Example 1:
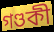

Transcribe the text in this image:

গণ্ডকী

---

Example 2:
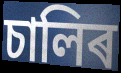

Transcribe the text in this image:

চালিৰ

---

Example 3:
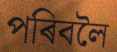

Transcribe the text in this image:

পৰিবলৈ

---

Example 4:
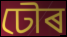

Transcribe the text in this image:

ঢৌৰ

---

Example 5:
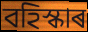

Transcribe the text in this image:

বহিস্কাৰ